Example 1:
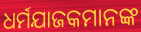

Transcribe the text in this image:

ଧର୍ମଯାଜକମାନଙ୍କ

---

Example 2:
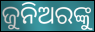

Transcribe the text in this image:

ଜୁନିଅରଙ୍କୁ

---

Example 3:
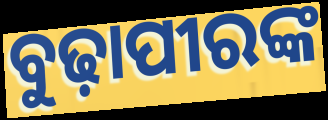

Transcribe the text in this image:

ବୁଢ଼ାପୀରଙ୍କ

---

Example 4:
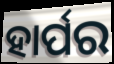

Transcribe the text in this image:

ହାର୍ପର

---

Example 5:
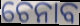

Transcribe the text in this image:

ଚେନାବ